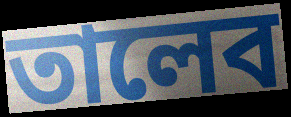
তালেব